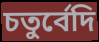
চতুর্বেদি